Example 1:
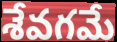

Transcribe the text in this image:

శేవగమే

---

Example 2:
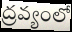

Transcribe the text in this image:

ద్రవ్యంలో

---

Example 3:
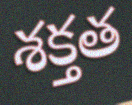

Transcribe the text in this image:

శక్తత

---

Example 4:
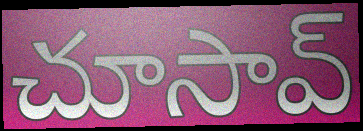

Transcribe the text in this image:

చూసావ్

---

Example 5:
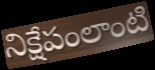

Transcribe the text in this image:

నిక్షేపంలాంటి